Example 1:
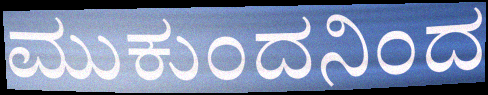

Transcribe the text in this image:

ಮುಕುಂದನಿಂದ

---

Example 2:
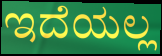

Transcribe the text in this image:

ಇದೆಯಲ್ಲ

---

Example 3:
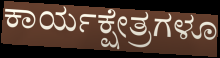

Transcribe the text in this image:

ಕಾರ್ಯಕ್ಷೇತ್ರಗಳೂ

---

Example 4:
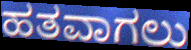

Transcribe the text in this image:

ಹತವಾಗಲು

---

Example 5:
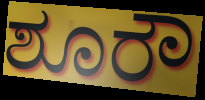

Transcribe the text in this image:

ಶೂರೌ